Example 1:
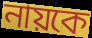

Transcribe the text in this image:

নায়কে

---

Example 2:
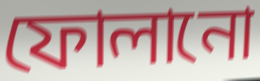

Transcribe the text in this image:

ফোলানো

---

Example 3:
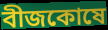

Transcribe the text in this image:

বীজকোষে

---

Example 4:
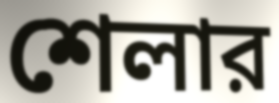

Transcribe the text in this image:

শেলার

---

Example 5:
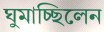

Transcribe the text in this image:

ঘুমাচ্ছিলেন